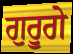
ਗੁਰੂਗੇ